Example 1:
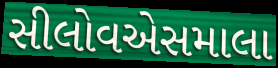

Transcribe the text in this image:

સીલોવએસમાલા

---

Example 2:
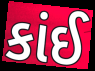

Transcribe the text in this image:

કાંઈ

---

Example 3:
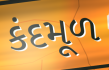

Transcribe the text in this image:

કંદમૂળ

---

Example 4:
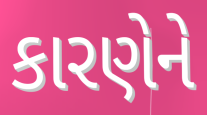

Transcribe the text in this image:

કારણેને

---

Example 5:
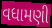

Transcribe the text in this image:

વધામણી